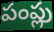
పంప్లు